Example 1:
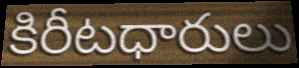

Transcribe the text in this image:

కిరీటధారులు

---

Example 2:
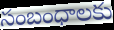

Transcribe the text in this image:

సంబంధాలకు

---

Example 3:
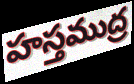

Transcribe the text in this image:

హస్తముద్ర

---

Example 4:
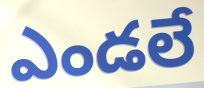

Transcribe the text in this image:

ఎండలే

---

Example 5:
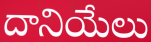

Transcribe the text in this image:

దానియేలు